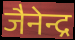
जैनेन्‍द्र